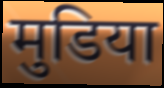
मुडिया